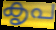
കൃപ